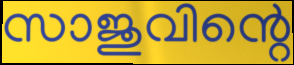
സാജുവിന്റെ